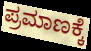
ಪ್ರಮಾಣಕ್ಕೆ